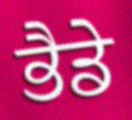
ਭੈਡੇ